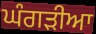
ਘੰਗੜੀਆ